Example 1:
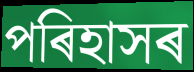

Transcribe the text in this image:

পৰিহাসৰ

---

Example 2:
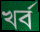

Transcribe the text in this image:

খৰ্ব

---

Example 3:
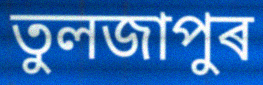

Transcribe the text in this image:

তুলজাপুৰ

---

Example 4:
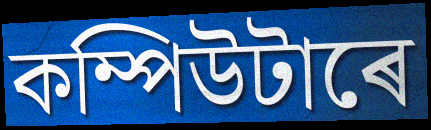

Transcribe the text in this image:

কম্পিউটাৰে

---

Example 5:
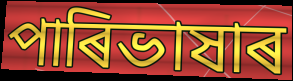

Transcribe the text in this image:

পাৰিভাষাৰ